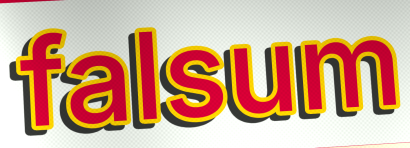
falsum